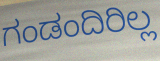
ಗಂಡಂದಿರಿಲ್ಲ